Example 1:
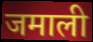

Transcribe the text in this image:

जमाली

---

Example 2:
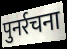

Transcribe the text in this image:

पुनर्रचना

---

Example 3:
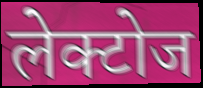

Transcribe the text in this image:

लेक्टोज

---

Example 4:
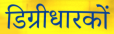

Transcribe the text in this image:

डिग्रीधारकों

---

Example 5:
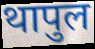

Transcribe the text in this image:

थापुल